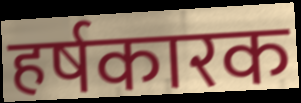
हर्षकारक